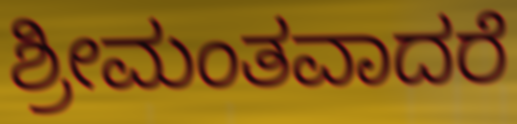
ಶ್ರೀಮಂತವಾದರೆ